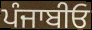
ਪੰਜਾਬੀਓ